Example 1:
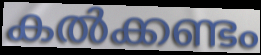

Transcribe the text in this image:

കൽക്കണ്ടം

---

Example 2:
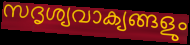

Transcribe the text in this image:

സദൃശ്യവാക്യങ്ങളും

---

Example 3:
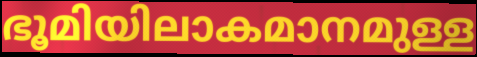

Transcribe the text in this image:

ഭൂമിയിലാകമാനമുള്ള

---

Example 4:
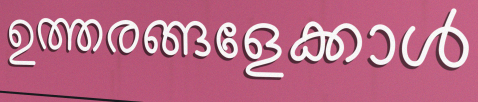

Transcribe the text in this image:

ഉത്തരങ്ങളേക്കാൾ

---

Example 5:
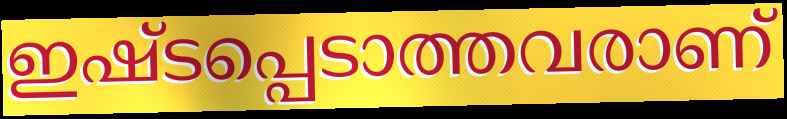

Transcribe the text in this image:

ഇഷ്ടപ്പെടാത്തവരാണ്